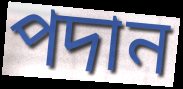
পদান